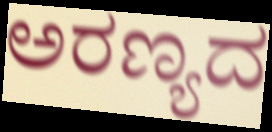
ಅರಣ್ಯದ